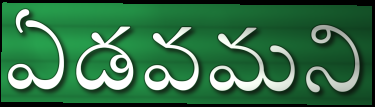
ఏడవమని